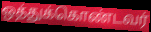
ஒத்துக்கொண்டவர்